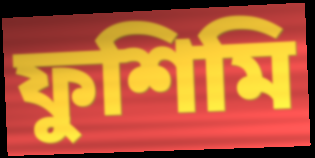
ফুশিমি